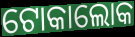
ଟୋକାଲୋକ